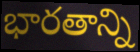
భారతాన్ని